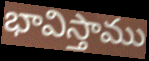
భావిస్తాము